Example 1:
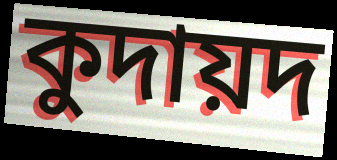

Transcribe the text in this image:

কুদায়দ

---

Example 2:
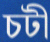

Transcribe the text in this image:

চটী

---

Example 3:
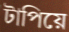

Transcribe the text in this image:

টাপিয়ে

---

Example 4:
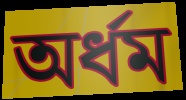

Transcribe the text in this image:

অর্ধম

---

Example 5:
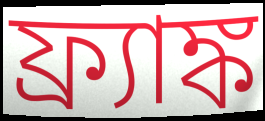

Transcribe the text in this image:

ফ্র্যাঙ্ক